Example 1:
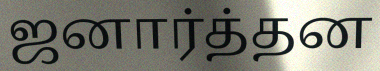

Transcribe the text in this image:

ஜனார்த்தன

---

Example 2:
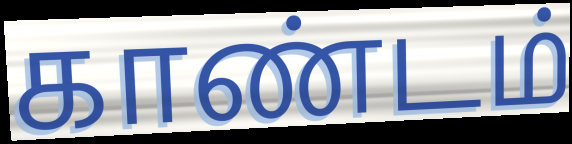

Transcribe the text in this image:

காண்டம்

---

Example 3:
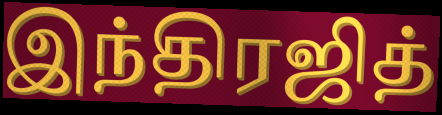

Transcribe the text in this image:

இந்திரஜித்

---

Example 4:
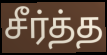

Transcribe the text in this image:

சீர்த்த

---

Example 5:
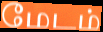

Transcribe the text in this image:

மேடம்